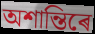
অশান্তিৰে